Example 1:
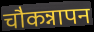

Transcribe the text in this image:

चौकन्नापन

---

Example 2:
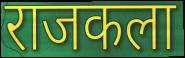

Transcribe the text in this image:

राजकला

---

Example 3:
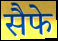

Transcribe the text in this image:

सैफे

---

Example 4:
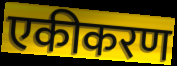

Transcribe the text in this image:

एकीकरण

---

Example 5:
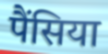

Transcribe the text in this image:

पैंसिया